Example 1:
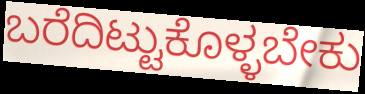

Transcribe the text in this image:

ಬರೆದಿಟ್ಟುಕೊಳ್ಳಬೇಕು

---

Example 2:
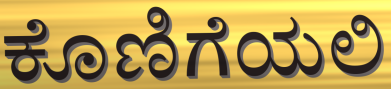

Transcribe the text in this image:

ಕೊಣಿಗೆಯಲಿ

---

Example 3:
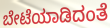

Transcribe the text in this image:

ಬೇಟೆಯಾಡಿದಂತೆ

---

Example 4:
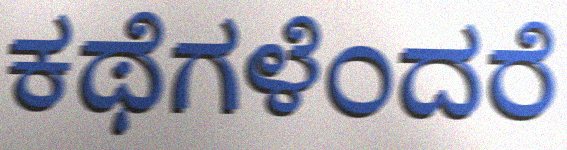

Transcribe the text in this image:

ಕಥೆಗಳೆಂದರೆ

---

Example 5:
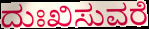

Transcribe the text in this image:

ದುಃಖಿಸುವರೆ